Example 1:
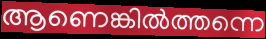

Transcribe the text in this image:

ആണെങ്കിൽത്തന്നെ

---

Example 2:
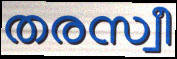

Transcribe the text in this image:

തരസ്വീ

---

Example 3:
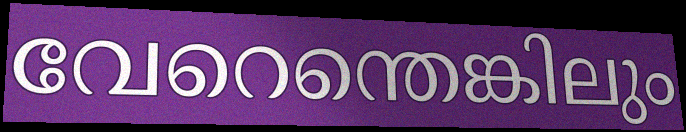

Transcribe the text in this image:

വേറെന്തെങ്കിലും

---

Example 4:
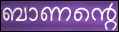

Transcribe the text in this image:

ബാണന്റെ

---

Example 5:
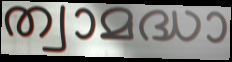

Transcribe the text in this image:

ത്വാമദ്ധാ